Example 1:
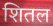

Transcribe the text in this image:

शितल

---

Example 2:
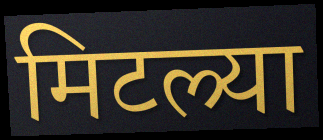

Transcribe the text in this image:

मिटल्या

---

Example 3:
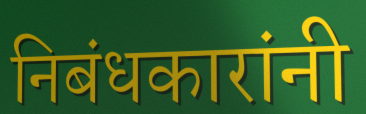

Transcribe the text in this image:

निबंधकारांनी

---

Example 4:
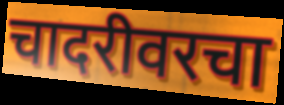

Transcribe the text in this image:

चादरीवरचा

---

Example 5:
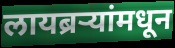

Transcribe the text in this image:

लायब्रऱ्यांमधून